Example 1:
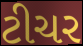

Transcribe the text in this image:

ટીચર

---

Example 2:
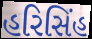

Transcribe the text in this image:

હરિસિંહ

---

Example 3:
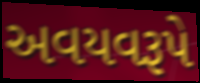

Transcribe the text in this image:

અવયવરૂપે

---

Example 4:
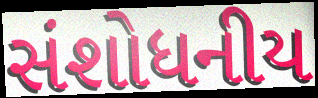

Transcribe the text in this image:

સંશોધનીય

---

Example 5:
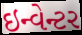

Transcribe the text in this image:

ઇન્વેન્ટર